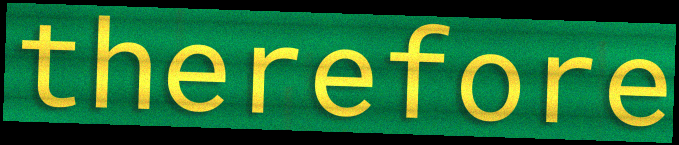
therefore